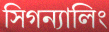
সিগন্যালিং